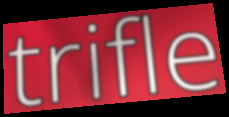
trifle